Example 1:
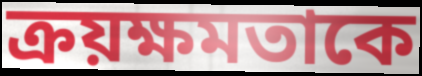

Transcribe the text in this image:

ক্রয়ক্ষমতাকে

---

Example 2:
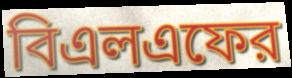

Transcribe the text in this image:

বিএলএফের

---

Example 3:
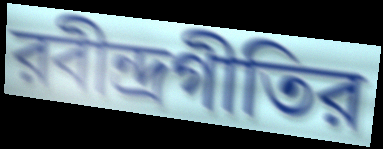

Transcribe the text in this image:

রবীন্দ্রগীতির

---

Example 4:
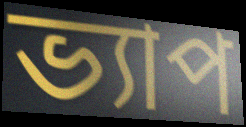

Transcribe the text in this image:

ভ্যাপ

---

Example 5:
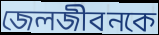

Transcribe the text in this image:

জেলজীবনকে